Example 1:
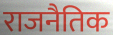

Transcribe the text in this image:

राजनैतिक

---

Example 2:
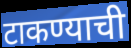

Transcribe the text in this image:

टाकण्याची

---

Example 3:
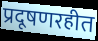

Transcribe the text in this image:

प्रदूषणरहीत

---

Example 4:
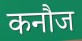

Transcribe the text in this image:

कनौज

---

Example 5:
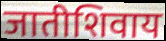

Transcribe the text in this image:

जातीशिवाय